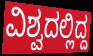
ವಿಶ್ವದಲ್ಲಿದ್ದ